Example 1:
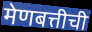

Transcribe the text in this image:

मेणबत्तीची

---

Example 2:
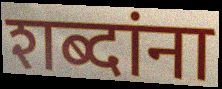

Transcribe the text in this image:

शब्दांना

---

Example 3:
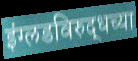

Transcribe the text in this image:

इंग्लडविरुद्धच्या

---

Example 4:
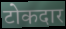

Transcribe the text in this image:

टोकदार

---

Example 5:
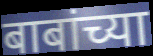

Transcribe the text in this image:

बाबांच्या